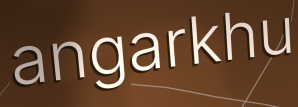
angarkhu